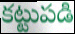
కట్టుపడి